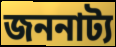
জননাট্য